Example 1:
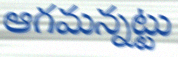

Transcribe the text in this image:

ఆగమన్నట్టు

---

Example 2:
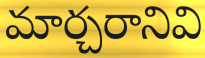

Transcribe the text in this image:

మార్చరానివి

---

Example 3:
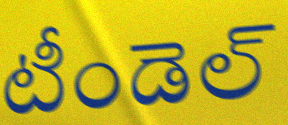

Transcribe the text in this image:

టీండెల్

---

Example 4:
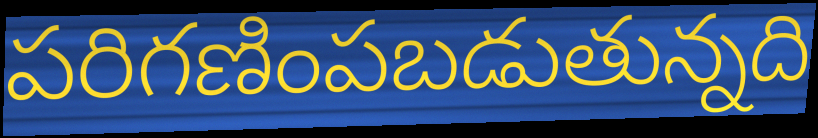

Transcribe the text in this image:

పరిగణింపబడుతున్నది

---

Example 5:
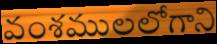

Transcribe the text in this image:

వంశములలోగాని